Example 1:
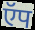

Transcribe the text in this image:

ऍप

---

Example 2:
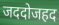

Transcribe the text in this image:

जददोजहद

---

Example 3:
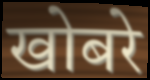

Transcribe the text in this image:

खोबरे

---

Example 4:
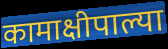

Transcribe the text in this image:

कामाक्षीपाल्या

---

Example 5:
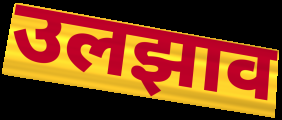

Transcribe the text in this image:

उलझाव